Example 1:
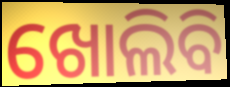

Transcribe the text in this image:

ଖୋଲିବି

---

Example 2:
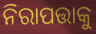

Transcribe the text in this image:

ନିରାପତ୍ତାକୁ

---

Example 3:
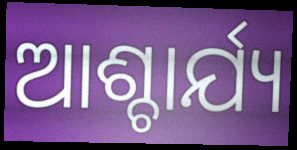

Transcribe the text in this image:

ଆଶ୍ଚାର୍ଯ୍ୟ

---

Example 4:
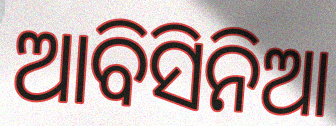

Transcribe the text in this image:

ଆବିସିନିଆ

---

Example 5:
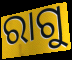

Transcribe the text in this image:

ରାଗୁ